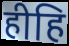
हीहि